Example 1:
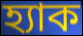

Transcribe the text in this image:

হ্যাক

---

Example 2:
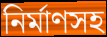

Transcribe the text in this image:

নির্মাণসহ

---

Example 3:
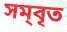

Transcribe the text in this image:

সম্‌বৃত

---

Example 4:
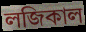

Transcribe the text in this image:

লজিকাল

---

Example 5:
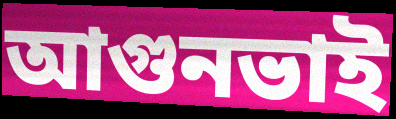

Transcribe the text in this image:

আগুনভাই